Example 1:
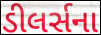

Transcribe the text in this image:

ડીલર્સના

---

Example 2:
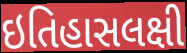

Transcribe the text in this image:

ઇતિહાસલક્ષી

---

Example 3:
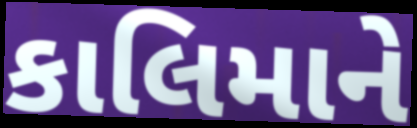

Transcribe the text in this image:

કાલિમાને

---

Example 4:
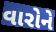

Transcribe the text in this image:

વારોને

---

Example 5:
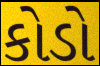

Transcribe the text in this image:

કોડો